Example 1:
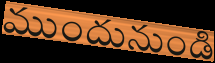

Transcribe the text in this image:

ముందునుండి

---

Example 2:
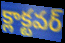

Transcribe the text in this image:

క్లాక్టవర్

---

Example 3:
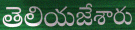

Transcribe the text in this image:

తెలియజేశారు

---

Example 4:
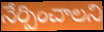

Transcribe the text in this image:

నేర్పించాలని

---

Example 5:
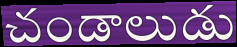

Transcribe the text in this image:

చండాలుడు